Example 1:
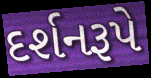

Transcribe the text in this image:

દર્શનરૂપે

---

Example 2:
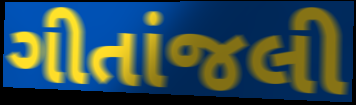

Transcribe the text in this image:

ગીતાંજલી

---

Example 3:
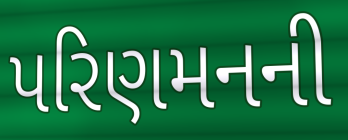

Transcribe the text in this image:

પરિણમનની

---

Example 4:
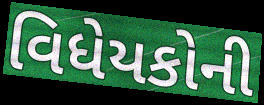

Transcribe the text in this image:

વિધેયકોની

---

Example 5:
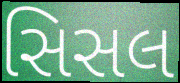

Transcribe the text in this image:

સિસલ